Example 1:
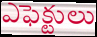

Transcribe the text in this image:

ఎఫెక్టులు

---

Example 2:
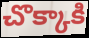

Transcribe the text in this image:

చొక్కాకి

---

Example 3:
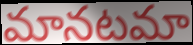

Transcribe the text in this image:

మానటమా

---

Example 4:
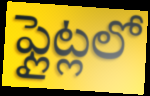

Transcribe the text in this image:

ఫ్లైట్లలో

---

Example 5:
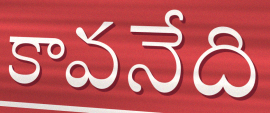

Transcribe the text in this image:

కావనేది